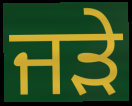
ਜੜੇ